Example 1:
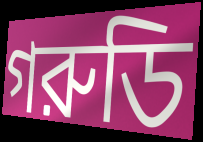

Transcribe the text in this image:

গরুডি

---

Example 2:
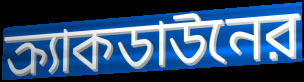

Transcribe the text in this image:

ক্র্যাকডাউনের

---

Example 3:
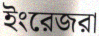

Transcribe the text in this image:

ইংরেজরা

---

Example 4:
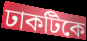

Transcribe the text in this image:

ঢাকটিকে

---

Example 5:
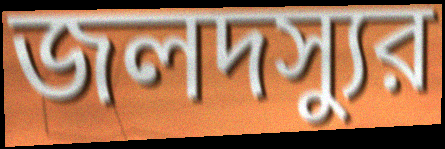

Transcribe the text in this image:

জলদস্যুর